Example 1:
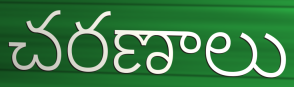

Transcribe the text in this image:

చరణాలు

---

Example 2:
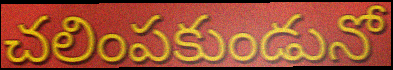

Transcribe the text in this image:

చలింపకుండునో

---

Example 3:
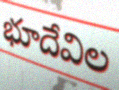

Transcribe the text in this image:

భూదేవిల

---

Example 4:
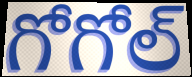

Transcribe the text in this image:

గోగోల్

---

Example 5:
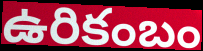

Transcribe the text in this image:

ఉరికంబం